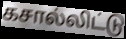
கசால்லிட்டு